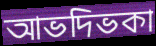
আভদিভকা